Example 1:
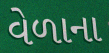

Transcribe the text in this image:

વેળાના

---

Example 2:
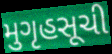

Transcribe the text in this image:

મુગૃહસૂચી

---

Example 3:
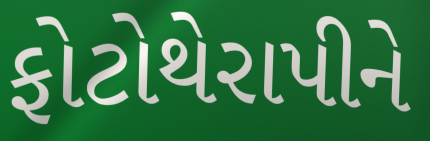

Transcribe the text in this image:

ફોટોથેરાપીને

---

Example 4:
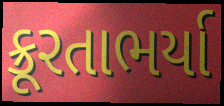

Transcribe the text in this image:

ક્રૂરતાભર્યા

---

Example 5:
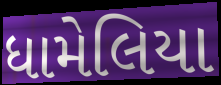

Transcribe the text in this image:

ધામેલિયા